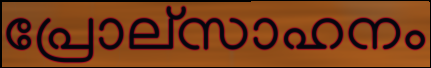
പ്രോല്സാഹനം